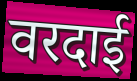
वरदाई